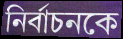
নির্বাচনকে